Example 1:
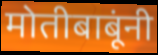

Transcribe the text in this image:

मोतीबाबूंनी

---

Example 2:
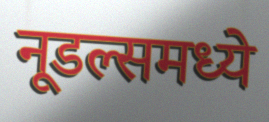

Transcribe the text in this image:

नूडल्समध्ये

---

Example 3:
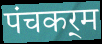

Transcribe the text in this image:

पंचकर्म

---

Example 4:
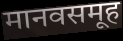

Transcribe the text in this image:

मानवसमूह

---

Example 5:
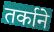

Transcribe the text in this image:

तर्काने